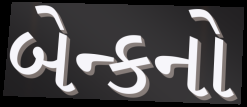
બેન્કનો